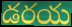
డరయ